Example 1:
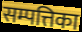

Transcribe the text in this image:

सम्पत्तिका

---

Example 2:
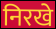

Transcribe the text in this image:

निरखे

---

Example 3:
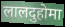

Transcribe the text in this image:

लालदुहोमा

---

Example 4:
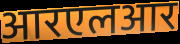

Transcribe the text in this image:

आरएलआर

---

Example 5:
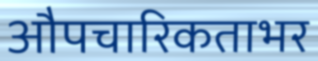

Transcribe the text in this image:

औपचारिकताभर